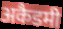
अकैडमी